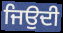
ਜਿਉਦੀ